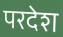
परदेश